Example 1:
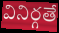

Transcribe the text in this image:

వినిర్గతే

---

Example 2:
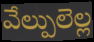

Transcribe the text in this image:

వేల్పులెల్ల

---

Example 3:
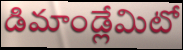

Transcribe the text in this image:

డిమాండ్లేమిటో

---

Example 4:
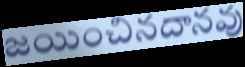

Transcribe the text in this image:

జయించినదానవు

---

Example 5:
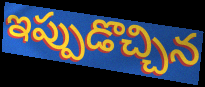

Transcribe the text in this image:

ఇప్పుడొచ్చిన